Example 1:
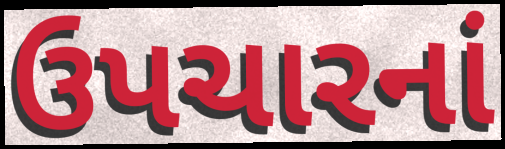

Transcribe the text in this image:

ઉપચારનાં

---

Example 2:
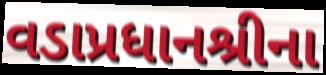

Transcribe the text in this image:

વડાપ્રધાનશ્રીના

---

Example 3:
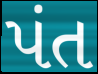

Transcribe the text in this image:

પંત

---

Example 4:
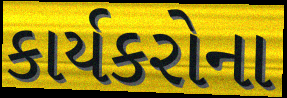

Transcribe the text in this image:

કાર્યકરોના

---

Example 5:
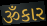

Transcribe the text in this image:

ૐકાર